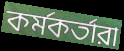
কর্মকর্তারা